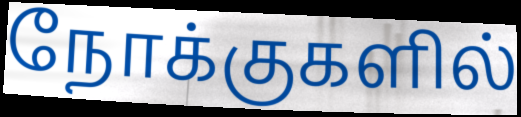
நோக்குகளில்